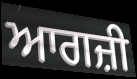
ਆਗਜ਼ੀ